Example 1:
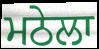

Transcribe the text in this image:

ਮਠੇਲਾ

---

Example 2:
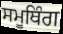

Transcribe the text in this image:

ਸਮੂਥਿੰਗ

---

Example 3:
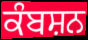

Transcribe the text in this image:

ਕੰਬਸ਼ਨ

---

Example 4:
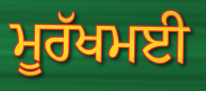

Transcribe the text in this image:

ਮੂਰੱਖਮਈ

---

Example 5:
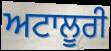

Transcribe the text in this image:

ਅਟਾਲੂਰੀ